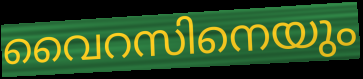
വൈറസിനെയും